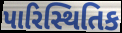
પારિસ્થિતિક